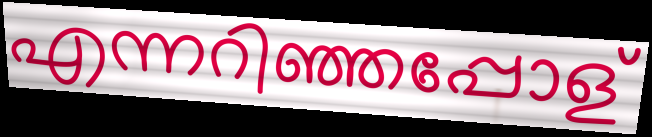
എന്നറിഞ്ഞപ്പോള്